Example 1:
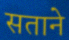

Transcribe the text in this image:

सताने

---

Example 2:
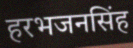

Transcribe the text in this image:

हरभजनसिंह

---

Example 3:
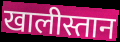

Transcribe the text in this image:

खालीस्तान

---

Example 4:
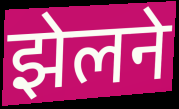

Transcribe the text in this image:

झेलने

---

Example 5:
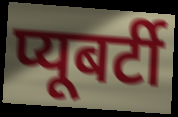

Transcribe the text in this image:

प्यूबर्टी